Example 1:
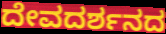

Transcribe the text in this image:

ದೇವದರ್ಶನದ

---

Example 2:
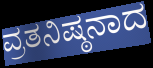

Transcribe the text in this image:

ವ್ರತನಿಷ್ಠನಾದ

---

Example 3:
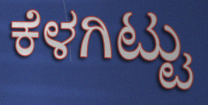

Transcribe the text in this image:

ಕೆಳಗಿಟ್ಟು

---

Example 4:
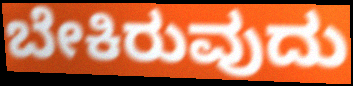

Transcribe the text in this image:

ಬೇಕಿರುವುದು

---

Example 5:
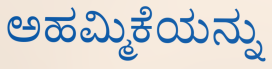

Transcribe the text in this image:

ಅಹಮ್ಮಿಕೆಯನ್ನು